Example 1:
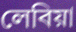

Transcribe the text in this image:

লেবিয়া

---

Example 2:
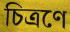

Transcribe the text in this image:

চিত্ৰণে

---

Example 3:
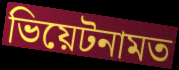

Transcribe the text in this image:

ভিয়েটনামত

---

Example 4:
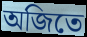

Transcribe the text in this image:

অজিতে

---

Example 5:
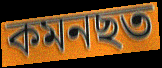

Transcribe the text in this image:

কমনছত